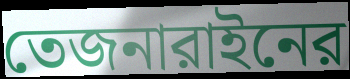
তেজনারাইনের